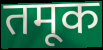
तमूक